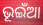
ଭୂଇଁଆ